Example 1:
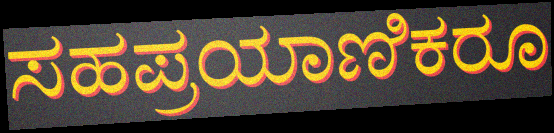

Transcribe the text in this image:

ಸಹಪ್ರಯಾಣಿಕರೂ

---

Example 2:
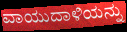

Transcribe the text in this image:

ವಾಯುದಾಳಿಯನ್ನು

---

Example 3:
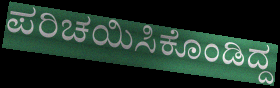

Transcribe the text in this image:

ಪರಿಚಯಿಸಿಕೊಂಡಿದ್ದ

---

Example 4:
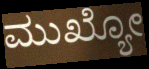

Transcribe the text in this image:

ಮುಖ್ಯೋ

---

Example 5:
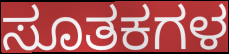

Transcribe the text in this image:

ಸೂತಕಗಳ